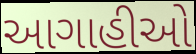
આગાહીઓ